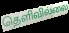
தெளிவில்லை